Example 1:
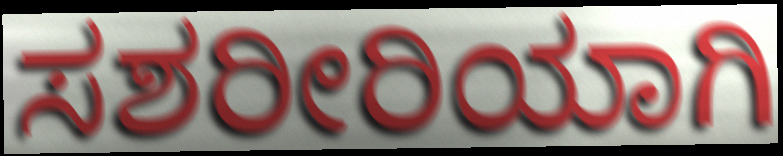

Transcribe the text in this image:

ಸಶರೀರಿಯಾಗಿ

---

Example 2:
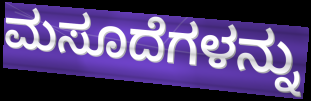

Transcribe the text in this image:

ಮಸೂದೆಗಳನ್ನು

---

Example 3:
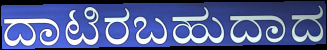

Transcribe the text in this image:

ದಾಟಿರಬಹುದಾದ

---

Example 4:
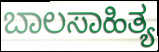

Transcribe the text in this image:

ಬಾಲಸಾಹಿತ್ಯ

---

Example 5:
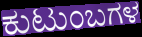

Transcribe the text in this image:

ಕುಟುಂಬಗಳ